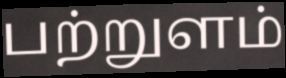
பற்றுளம்